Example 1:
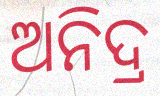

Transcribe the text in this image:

ଅନିଦ୍ର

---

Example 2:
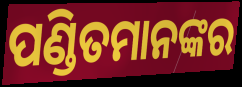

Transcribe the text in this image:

ପଣ୍ଡିତମାନଙ୍କର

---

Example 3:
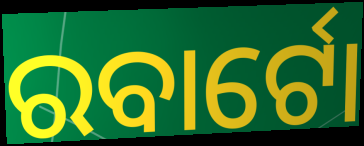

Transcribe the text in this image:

ରବାର୍ଟୋ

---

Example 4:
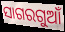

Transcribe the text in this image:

ସାଗରଗୁଆଁ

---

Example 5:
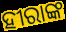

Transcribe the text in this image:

ହୀରାଙ୍କ